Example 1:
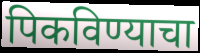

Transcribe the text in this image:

पिकविण्याचा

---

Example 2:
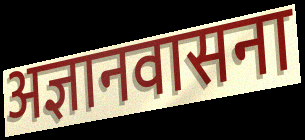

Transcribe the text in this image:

अज्ञानवासना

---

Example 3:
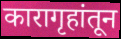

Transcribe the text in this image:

कारागृहांतून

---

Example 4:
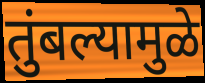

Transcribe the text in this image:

तुंबल्यामुळे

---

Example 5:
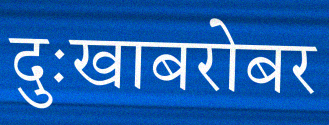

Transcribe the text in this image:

दुःखाबरोबर